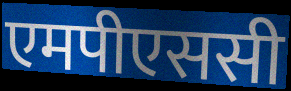
एमपीएससी